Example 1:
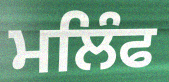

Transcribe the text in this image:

ਮਲਿੰਫ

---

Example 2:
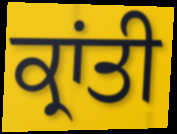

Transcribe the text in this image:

ਕ੍ਰਾਂਤੀ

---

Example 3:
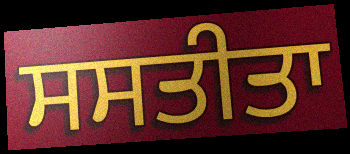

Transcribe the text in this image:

ਸਸਤੀਤਾ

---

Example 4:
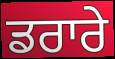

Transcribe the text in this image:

ਡਰਾਰੇ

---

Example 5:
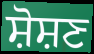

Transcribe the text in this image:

ਸ਼ੋਸ਼ਣ